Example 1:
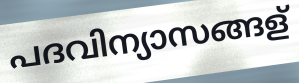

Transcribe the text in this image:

പദവിന്യാസങ്ങള്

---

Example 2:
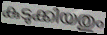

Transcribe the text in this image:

കുടുക്കിയതും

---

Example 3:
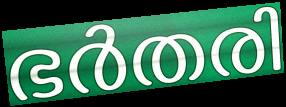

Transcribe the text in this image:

ഭർതരി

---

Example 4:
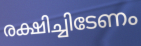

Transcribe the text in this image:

രക്ഷിച്ചിടേണം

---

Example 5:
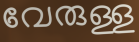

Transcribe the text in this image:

വേരുള്ള